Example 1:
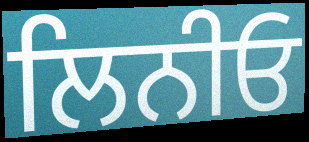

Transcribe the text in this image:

ਲਿਨੀਓ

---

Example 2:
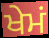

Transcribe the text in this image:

ਖੇਮਂ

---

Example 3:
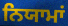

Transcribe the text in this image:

ਨਿਯਾਮਾਂ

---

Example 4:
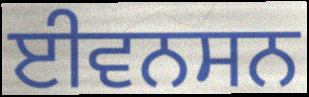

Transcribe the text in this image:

ਈਵਨਸਨ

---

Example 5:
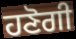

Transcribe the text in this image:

ਹਣੋਗੀ